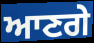
ਆਣਗੇ